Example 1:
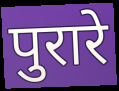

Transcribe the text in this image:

पुरारे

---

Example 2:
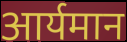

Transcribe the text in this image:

आर्यमान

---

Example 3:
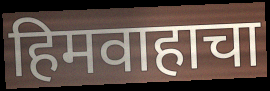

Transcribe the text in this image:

हिमवाहाचा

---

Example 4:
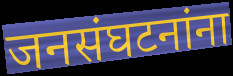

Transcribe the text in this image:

जनसंघटनांना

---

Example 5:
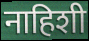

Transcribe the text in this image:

नाहिशी